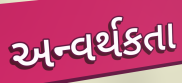
અન્વર્થકતા